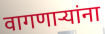
वागणार्‍यांना